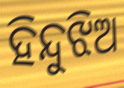
ହିନ୍ଦୁଝିଅ